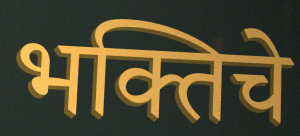
भक्तिचे